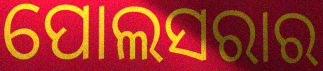
ପୋଲସରାର